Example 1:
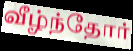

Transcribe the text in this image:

வீழ்ந்தோர்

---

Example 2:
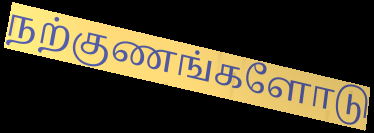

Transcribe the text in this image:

நற்குணங்களோடு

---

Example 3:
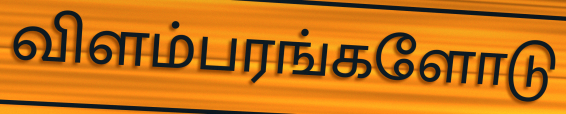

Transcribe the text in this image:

விளம்பரங்களோடு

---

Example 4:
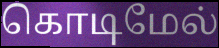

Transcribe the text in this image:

கொடிமேல்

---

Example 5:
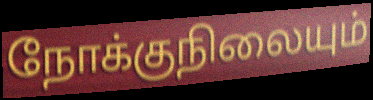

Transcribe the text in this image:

நோக்குநிலையும்